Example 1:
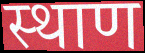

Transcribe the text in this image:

स्थाण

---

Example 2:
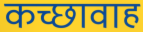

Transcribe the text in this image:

कच्छावाह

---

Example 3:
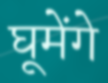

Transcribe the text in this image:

घूमेंगे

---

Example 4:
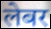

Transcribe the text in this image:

लेबर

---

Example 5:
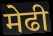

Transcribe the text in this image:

मेढी